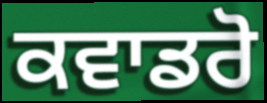
ਕਵਾਡਰੋ